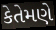
કેતેમણે